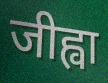
जीह्वा